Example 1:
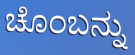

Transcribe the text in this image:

ಚೊಂಬನ್ನು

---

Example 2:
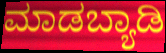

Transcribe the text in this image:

ಮಾಡಬ್ಯಾಡಿ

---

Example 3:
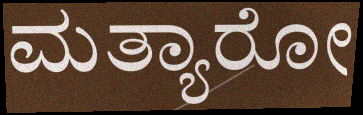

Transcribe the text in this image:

ಮತ್ಯಾರೋ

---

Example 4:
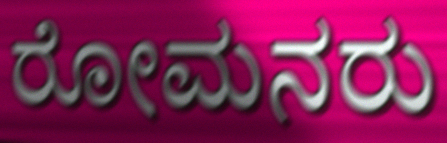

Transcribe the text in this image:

ರೋಮನರು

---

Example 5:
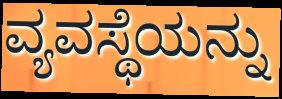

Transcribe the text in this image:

ವ್ಯವಸ್ಥೆಯನ್ನು